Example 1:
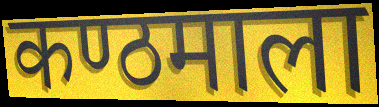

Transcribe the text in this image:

कण्ठमाला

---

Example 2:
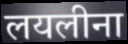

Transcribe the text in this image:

लयलीना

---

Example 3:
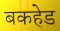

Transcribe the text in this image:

बकहेड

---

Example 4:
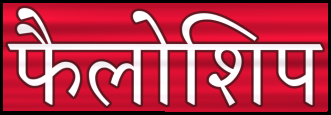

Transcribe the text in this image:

फैलोशिप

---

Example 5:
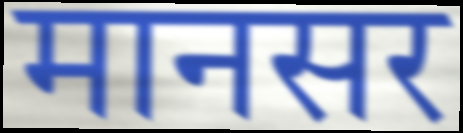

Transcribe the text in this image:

मानसर